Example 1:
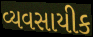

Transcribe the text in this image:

વ્યવસાયીક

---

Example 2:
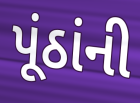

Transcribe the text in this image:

પૂંઠાંની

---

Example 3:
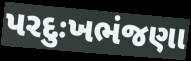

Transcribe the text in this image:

પરદુઃખભંજણા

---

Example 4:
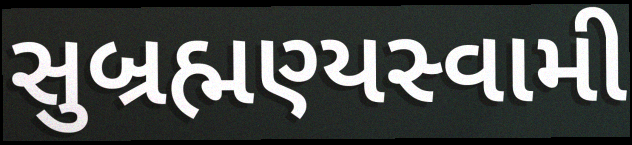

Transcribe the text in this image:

સુબ્રહ્મણ્યસ્વામી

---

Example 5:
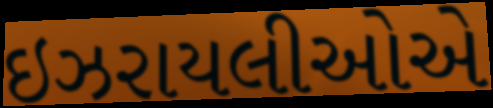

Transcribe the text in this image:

ઇઝરાયલીઓએ